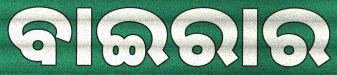
ବାଇରାର